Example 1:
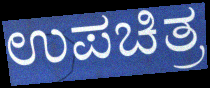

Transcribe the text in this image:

ಉಪಚಿತ್ರ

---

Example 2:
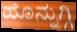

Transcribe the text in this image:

ಹೊನ್ನುಗ್ಗಿ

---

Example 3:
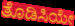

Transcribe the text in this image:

ತೊಡಿಸಿಯೇ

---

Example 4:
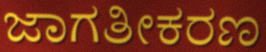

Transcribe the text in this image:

ಜಾಗತೀಕರಣ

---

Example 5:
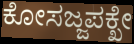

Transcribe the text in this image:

ಕೋಸಜ್ಜಪಕ್ಖೇ